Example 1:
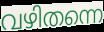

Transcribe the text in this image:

വഴിതന്നെ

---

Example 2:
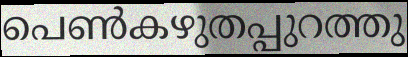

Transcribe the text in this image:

പെൺകഴുതപ്പുറത്തു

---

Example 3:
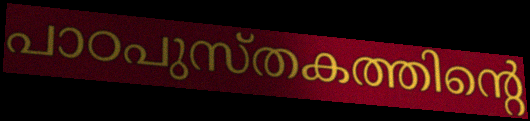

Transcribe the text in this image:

പാഠപുസ്തകത്തിന്റെ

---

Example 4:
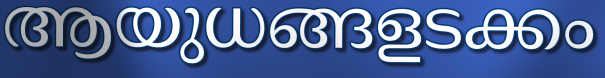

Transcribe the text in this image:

ആയുധങ്ങളടക്കം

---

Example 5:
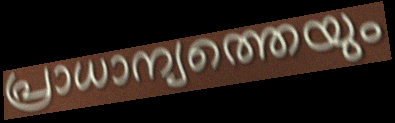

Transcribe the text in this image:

പ്രാധാന്യത്തെയും